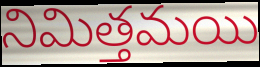
నిమిత్తమయి